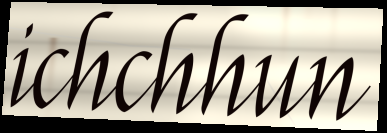
ichchhun